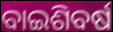
ବାଇଶିବର୍ଷ